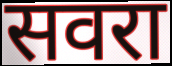
सवरा